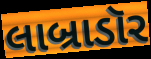
લાબ્રાડૉર